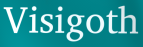
Visigoth